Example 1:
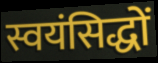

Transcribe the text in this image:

स्वयंसिद्धों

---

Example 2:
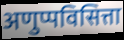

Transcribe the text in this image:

अणुप्पविसित्ता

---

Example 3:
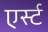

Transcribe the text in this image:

एर्स्ट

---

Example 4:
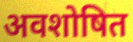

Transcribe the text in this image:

अवशोषित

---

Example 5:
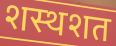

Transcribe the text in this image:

शस्थशत